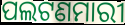
ପଲଟଣମାରୀ